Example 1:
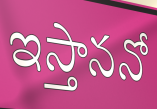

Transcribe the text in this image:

ఇస్తాననో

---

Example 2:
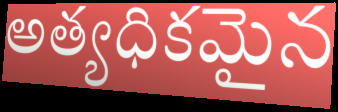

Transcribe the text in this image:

అత్యధికమైన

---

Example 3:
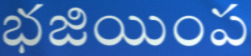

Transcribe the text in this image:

భజియింప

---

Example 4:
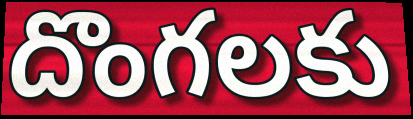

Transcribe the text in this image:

దొంగలకు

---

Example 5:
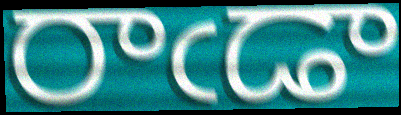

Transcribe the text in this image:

రాఁడా